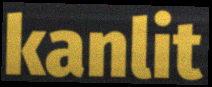
kanlit